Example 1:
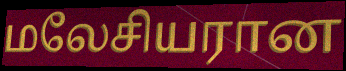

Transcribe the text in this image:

மலேசியரான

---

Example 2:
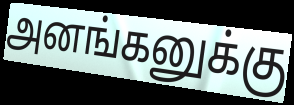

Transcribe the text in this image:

அனங்கனுக்கு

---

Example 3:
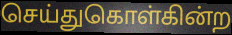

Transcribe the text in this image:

செய்துகொள்கின்ற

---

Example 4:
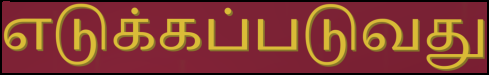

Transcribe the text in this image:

எடுக்கப்படுவது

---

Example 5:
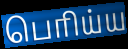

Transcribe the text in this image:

பெரிய்ய